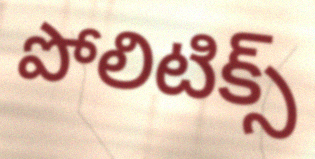
పోలిటిక్స్